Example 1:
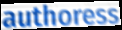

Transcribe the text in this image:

authoress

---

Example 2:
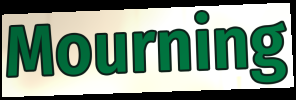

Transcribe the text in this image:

Mourning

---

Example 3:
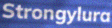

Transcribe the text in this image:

Strongylura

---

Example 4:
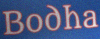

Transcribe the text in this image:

Bodha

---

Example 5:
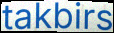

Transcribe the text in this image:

takbirs